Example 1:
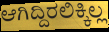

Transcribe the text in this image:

ಆಗಿದ್ದಿರಲಿಕ್ಕಿಲ್ಲ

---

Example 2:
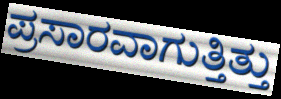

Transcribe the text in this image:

ಪ್ರಸಾರವಾಗುತ್ತಿತ್ತು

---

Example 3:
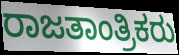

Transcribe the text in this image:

ರಾಜತಾಂತ್ರಿಕರು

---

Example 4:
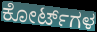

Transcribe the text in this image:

ಕೋರ್ಟ್‌ಗಳ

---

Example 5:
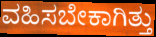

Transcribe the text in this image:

ವಹಿಸಬೇಕಾಗಿತ್ತು